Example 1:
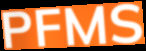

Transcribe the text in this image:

PFMS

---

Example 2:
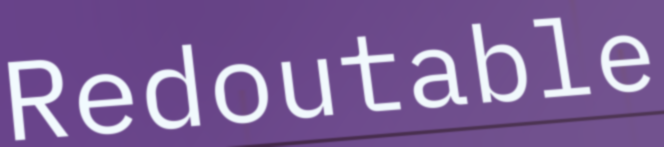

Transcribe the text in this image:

Redoutable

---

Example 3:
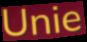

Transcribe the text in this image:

Unie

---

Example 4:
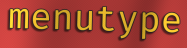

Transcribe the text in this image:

menutype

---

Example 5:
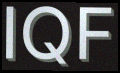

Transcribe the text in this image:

IQF